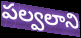
పల్వలాని